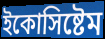
ইকোসিষ্টেম